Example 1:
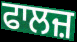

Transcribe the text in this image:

ਫਾਲਜ਼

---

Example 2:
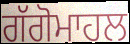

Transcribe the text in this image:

ਗੱਗੋਮਾਹਲ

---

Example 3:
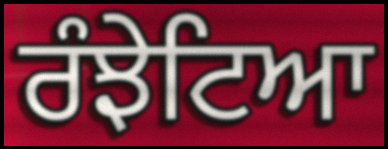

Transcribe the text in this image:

ਰੰਝੇਟਿਆ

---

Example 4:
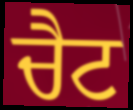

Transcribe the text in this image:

ਚੈਟ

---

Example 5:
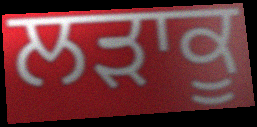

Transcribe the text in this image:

ਲੜਾਕੂ